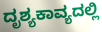
ದೃಶ್ಯಕಾವ್ಯದಲ್ಲಿ